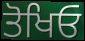
ਤੋਖਿਓ